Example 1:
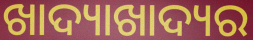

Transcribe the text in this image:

ଖାଦ୍ୟାଖାଦ୍ୟର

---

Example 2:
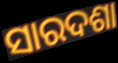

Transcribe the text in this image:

ସାରଦଶା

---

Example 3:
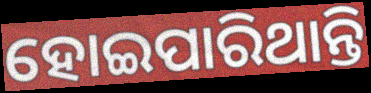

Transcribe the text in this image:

ହୋଇପାରିଥାନ୍ତି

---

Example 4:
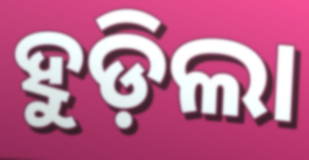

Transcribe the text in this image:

ହୁଡ଼ିଲା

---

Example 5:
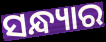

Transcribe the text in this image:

ସନ୍ଧ୍ୟାର